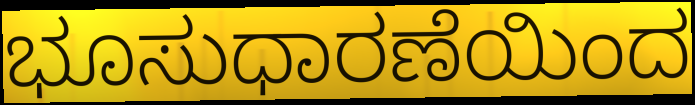
ಭೂಸುಧಾರಣೆಯಿಂದ